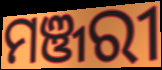
ମଞ୍ଜରୀ